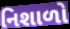
નિશાળો